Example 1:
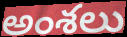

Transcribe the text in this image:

అంశలు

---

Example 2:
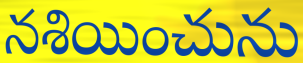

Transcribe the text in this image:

నశియించును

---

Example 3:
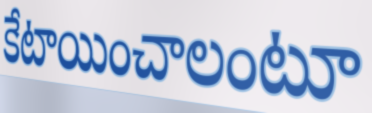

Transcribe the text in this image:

కేటాయించాలంటూ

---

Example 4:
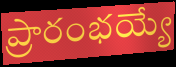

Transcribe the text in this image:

ప్రారంభయ్యే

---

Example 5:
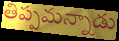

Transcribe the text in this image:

తిప్పమన్నాడు